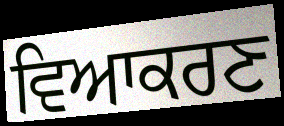
ਵਿਆਕਰਣ